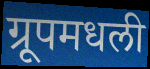
ग्रूपमधली